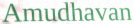
Amudhavan